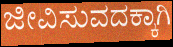
ಜೀವಿಸುವದಕ್ಕಾಗಿ